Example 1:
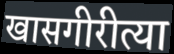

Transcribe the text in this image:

खासगीरीत्या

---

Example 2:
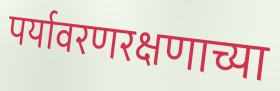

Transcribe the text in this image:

पर्यावरणरक्षणाच्या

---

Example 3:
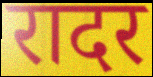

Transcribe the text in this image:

रादर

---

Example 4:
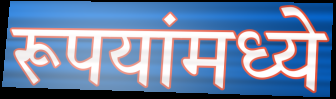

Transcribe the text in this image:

रूपयांमध्ये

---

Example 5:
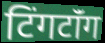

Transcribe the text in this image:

टिंगटॉंग